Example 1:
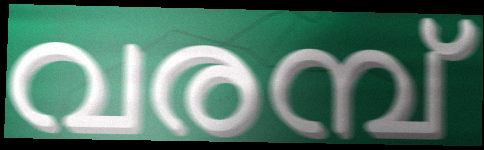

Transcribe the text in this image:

വരമ്പ്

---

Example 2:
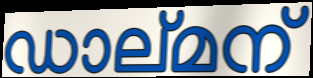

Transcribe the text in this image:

ഡാല്മന്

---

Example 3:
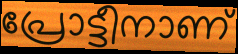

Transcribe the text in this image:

പ്രോട്ടീനാണ്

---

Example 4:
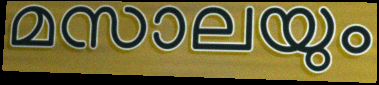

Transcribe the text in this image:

മസാലയും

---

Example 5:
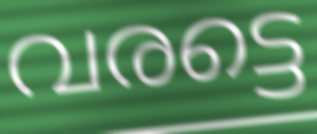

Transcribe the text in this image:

വരട്ടെ